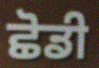
ਛੋਡੀ